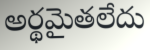
అర్థమైతలేదు